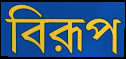
বিরূপ